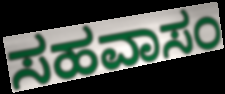
ಸಹವಾಸಂ